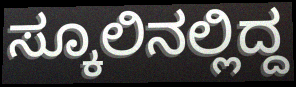
ಸ್ಕೂಲಿನಲ್ಲಿದ್ದ